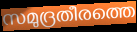
സമുദ്രതീരത്തെ